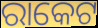
ରାକେଟ